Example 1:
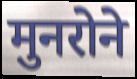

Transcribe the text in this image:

मुनरोने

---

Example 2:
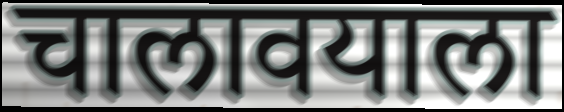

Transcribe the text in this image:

चालावयाला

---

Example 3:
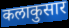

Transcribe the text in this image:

कलाकुसार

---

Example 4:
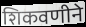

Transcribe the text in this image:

शिकवणीने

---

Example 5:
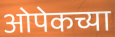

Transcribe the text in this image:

ओपेकच्या